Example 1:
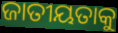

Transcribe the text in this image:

ଜାତୀୟତାକୁ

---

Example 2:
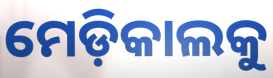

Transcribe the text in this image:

ମେଡ଼ିକାଲକୁ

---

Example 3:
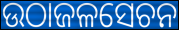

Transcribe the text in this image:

ଉଠାଜଳସେଚନ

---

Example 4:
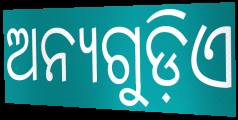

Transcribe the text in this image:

ଅନ୍ୟଗୁଡ଼ିଏ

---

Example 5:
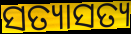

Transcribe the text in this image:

ସତ୍ୟାସତ୍ୟ